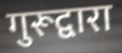
गुरूद्वारा